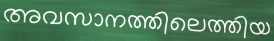
അവസാനത്തിലെത്തിയ